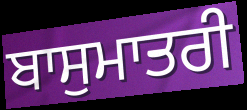
ਬਾਸੁਮਾਤਰੀ